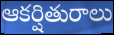
ఆకర్షితురాలు